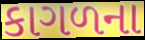
કાગળના